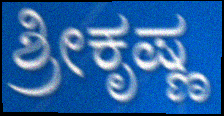
ಶ್ರೀಕೃಷ್ಣ